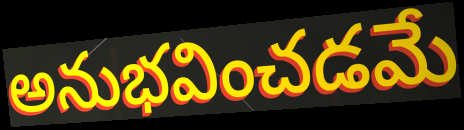
అనుభవించడమే